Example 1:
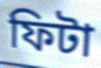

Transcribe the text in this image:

ফিটা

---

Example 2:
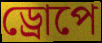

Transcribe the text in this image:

ড্ৰোপে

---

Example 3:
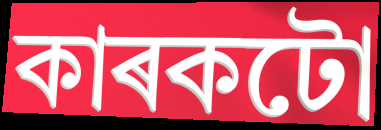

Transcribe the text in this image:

কাৰকটো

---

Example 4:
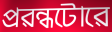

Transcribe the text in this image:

প্ৰৱন্ধটোৱে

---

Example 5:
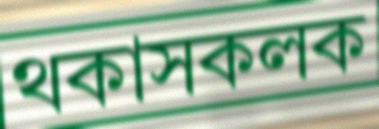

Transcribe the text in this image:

থকাসকলক